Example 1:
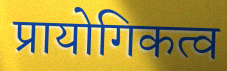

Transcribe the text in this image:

प्रायोगिकत्व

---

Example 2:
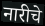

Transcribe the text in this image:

नारीचे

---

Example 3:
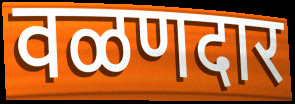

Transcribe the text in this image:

वळणदार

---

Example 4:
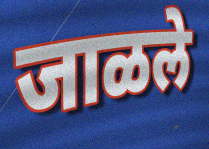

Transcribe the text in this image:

जाळले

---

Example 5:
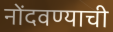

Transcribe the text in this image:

नोंदवण्याची